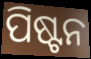
ପିଷ୍ଟନ